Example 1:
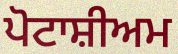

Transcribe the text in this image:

ਪੋਟਾਸ਼ੀਅਮ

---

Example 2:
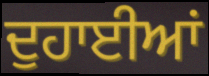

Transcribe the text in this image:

ਦੁਹਾਈਆਂ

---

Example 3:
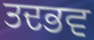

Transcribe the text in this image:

ਤਦਭਵ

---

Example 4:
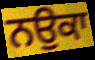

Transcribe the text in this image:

ਨਉਕਾ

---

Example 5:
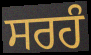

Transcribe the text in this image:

ਸਰਹੰ